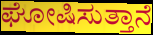
ಘೋಷಿಸುತ್ತಾನೆ